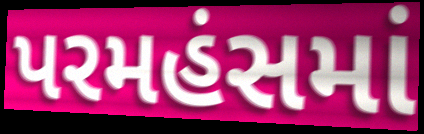
પરમહંસમાં